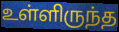
உள்ளிருந்த